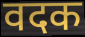
वदक